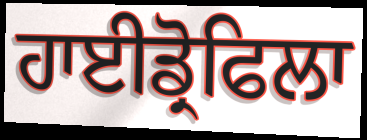
ਹਾਈਡ੍ਰੋਫਿਲਾ